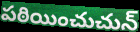
పఠియించుచున్